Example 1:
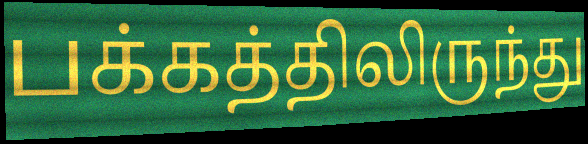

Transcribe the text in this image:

பக்கத்திலிருந்து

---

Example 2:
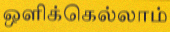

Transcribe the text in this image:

ஒளிக்கெல்லாம்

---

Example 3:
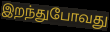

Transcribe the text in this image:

இறந்துபோவது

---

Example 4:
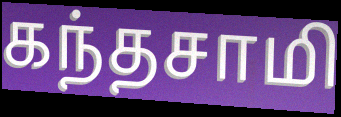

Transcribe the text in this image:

கந்தசாமி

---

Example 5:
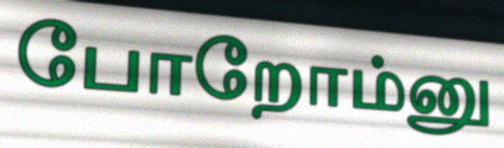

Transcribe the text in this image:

போறோம்னு